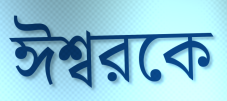
ঈশ্বরকে